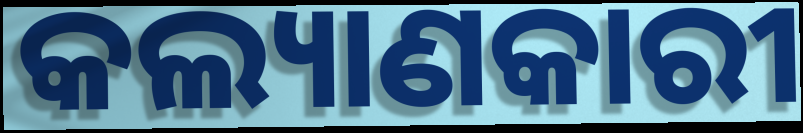
କଲ୍ୟାଣକାରୀ